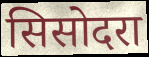
सिसोदरा